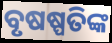
ବୃଷଷ୍ପତିଙ୍କ